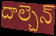
దాల్చెన్